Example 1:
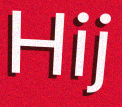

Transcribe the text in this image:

Hij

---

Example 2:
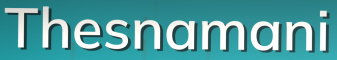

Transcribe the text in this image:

Thesnamani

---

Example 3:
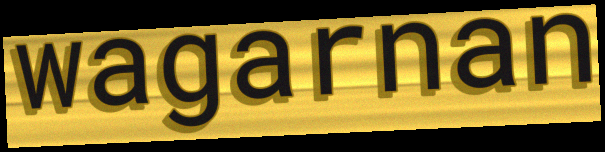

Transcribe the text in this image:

wagarnan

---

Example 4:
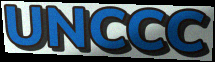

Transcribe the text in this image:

UNCCC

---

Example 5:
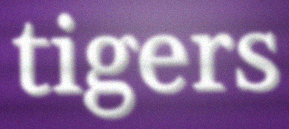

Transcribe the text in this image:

tigers